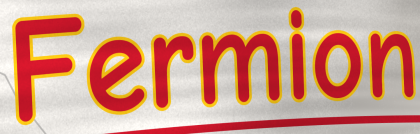
Fermion